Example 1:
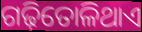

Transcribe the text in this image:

ଗଢ଼ିତୋଳିଥାଏ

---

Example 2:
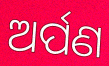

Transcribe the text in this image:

ଅର୍ପଣ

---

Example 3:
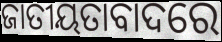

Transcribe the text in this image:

ଜାତୀୟତାବାଦରେ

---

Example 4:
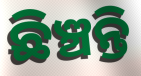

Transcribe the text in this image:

ଛିଞ୍ଚନ୍ତି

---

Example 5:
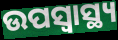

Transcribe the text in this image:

ଉପସ୍ୱାସ୍ଥ୍ୟ